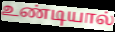
உண்டியால்